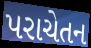
પરાચેતન